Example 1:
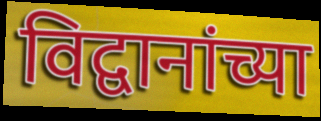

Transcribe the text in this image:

विद्वानांच्या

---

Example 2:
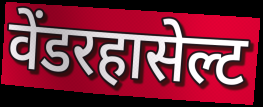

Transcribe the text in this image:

वेंडरहासेल्ट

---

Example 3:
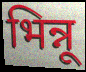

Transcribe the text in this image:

भिन्नू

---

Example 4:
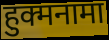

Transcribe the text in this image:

हुक्मनामा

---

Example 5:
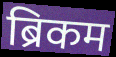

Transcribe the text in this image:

ब्रिकम